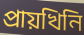
প্ৰায়খিনি